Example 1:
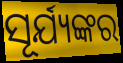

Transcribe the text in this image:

ସୂର୍ଯ୍ୟଙ୍କର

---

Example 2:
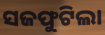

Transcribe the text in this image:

ସଜଫୁଟିଲା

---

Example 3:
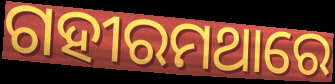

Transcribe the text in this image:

ଗହୀରମଥାରେ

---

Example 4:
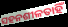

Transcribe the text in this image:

ସହନଶୀଳତାହିଁ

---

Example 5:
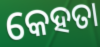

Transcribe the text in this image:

କେହତା